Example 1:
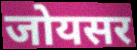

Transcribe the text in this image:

जोयसर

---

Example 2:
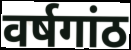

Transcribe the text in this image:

वर्षगांठ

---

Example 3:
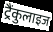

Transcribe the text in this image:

ट्रैंकुलाइज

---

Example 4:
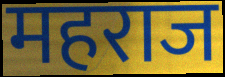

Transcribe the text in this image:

महराज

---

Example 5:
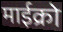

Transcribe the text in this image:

माईक्रो